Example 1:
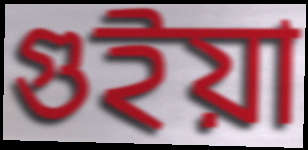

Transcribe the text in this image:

গুইয়া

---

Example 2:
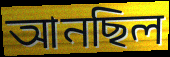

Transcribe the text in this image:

আনছিল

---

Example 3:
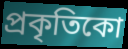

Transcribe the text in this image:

প্ৰকৃতিকো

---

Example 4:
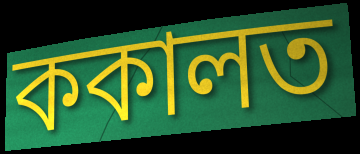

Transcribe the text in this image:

ককালত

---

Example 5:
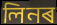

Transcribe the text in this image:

লিনৰ